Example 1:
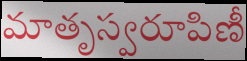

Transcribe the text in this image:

మాతృస్వరూపిణీ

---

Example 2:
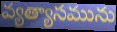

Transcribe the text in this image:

వ్యత్యాసమును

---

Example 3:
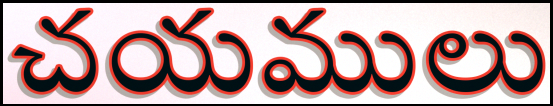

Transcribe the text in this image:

చయములు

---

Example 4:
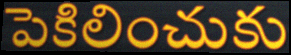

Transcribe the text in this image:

పెకిలించుకు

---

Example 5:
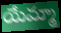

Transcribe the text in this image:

యేమ్మా